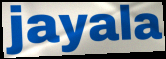
jayala